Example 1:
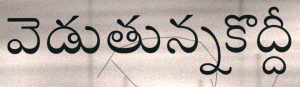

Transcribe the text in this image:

వెడుతున్నకొద్దీ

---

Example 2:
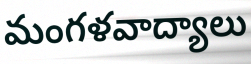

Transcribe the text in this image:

మంగళవాద్యాలు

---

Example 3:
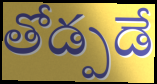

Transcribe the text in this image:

తోడ్పడే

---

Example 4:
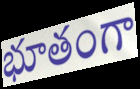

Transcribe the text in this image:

భూతంగా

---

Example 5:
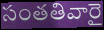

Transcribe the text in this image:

సంతతివారై